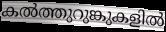
കൽത്തുറുങ്കുകളിൽ